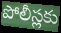
పోలీస్లకు